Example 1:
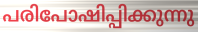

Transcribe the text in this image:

പരിപോഷിപ്പിക്കുന്നു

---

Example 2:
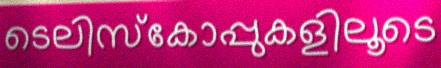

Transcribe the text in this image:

ടെലിസ്കോപ്പുകളിലൂടെ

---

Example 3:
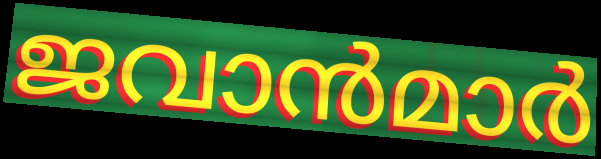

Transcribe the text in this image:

ജവാൻമാർ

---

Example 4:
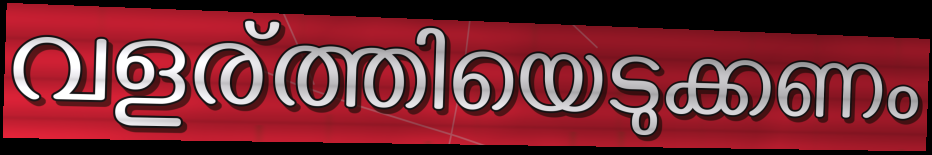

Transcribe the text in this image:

വളര്ത്തിയെടുക്കണം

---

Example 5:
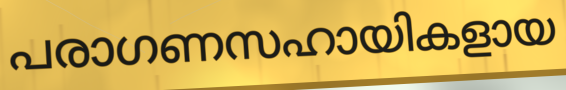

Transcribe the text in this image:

പരാഗണസഹായികളായ